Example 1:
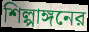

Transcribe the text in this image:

শিল্পাঙ্গনের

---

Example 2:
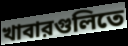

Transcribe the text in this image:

খাবারগুলিতে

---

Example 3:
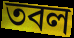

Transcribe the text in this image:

তবল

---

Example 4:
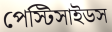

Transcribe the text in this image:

পেস্টিসাইডস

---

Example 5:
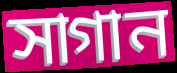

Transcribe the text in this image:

সাগান